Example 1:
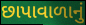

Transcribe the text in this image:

છાપાવાળાનું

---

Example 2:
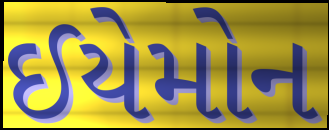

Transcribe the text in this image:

ઈયેમોન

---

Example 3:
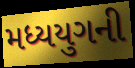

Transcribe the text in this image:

મધ્યયુગની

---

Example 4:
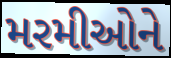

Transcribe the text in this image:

મરમીઓને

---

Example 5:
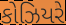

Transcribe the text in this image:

કોઝિયરે